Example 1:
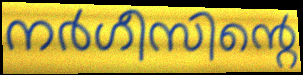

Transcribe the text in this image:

നർഗീസിന്റെ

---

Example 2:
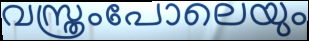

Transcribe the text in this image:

വസ്ത്രംപോലെയും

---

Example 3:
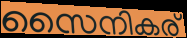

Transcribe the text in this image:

സൈനികര്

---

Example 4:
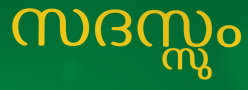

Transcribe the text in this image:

സദസ്സും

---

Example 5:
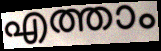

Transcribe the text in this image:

എത്താം